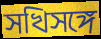
সখিসঙ্গে